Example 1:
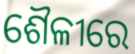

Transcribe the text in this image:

ଶୈଳୀରେ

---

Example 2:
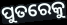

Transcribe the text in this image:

ପୁତରେକୁ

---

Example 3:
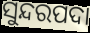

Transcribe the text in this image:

ସୁନ୍ଦରପଦା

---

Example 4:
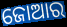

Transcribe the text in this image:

ଜୋଆର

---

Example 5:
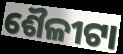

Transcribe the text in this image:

ଶୈଳୀଟା